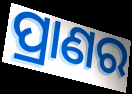
ପ୍ରାଣର